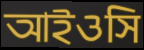
আইওসি